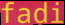
fadi